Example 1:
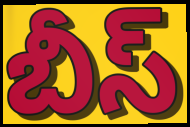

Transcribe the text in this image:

బీస్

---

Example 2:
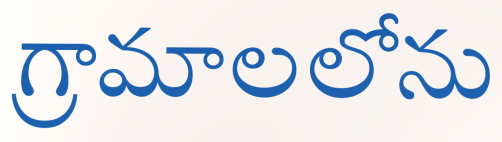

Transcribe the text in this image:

గ్రామాలలోను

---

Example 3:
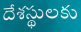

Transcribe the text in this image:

దేశస్థులకు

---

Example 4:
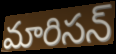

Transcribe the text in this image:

మారిసన్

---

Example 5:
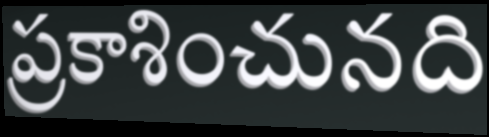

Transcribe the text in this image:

ప్రకాశించునది